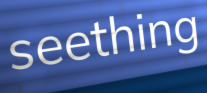
seething